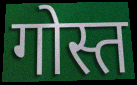
गोस्त